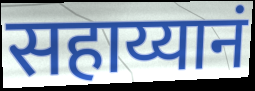
सहाय्यानं